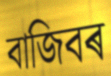
বাজিবৰ